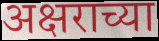
अक्षराच्या